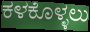
ಕಳಕೊಳ್ಳಲು